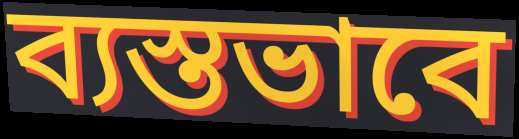
ব্যস্তভাবে